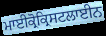
ਮਾਈਕ੍ਰੋਕ੍ਰਿਸਟਲਾਈਨ